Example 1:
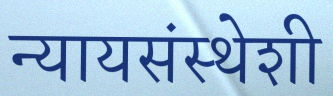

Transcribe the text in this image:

न्यायसंस्थेशी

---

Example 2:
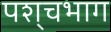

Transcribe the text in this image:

पश्चभाग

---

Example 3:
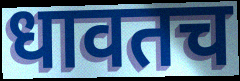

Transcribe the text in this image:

धावतच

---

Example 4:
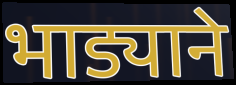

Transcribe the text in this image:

भाड्याने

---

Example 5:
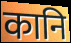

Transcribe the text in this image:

कानि